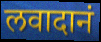
लवादानं